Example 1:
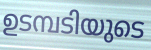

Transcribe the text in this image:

ഉടമ്പടിയുടെ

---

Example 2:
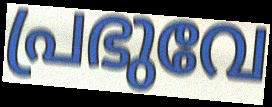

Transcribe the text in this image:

പ്രഭുവേ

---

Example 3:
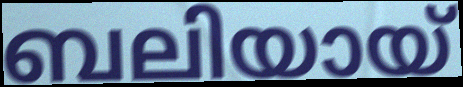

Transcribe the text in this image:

ബലിയായ്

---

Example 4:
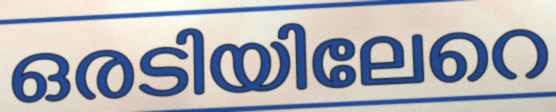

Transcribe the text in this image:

ഒരടിയിലേറെ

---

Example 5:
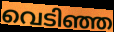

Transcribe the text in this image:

വെടിഞ്ഞ